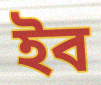
ইব